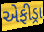
એફીડ્રા